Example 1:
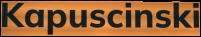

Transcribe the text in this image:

Kapuscinski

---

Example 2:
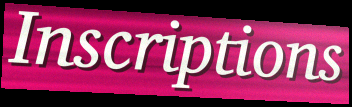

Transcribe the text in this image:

Inscriptions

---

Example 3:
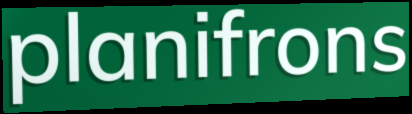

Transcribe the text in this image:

planifrons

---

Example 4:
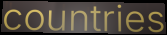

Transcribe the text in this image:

countries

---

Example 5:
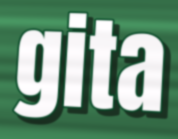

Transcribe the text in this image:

gita